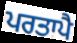
ਪਰਤਾਪੈ